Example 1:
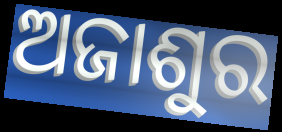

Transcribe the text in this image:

ଅଜାଶୁର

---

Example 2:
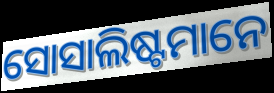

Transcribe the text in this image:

ସୋସାଲିଷ୍ଟମାନେ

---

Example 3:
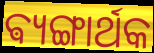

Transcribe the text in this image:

ଵ୍ୟଙ୍ଗାର୍ଥକ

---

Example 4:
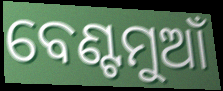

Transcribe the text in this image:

ବେଣ୍ଟମୁଆଁ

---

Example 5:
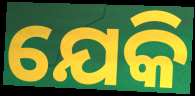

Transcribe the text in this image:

ଯେକି